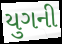
યુગની